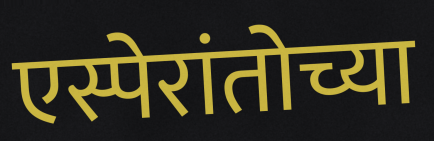
एस्पेरांतोच्या